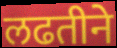
लढतीने